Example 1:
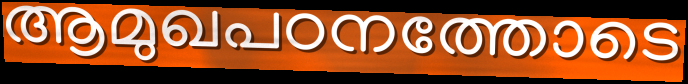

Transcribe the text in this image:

ആമുഖപഠനത്തോടെ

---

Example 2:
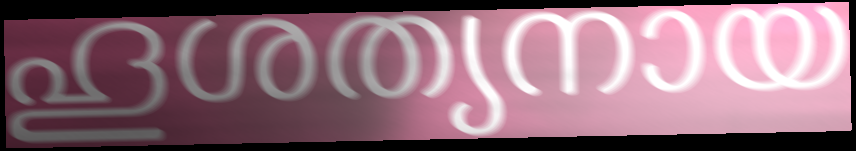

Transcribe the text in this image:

ഹൂശത്യനായ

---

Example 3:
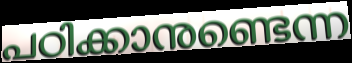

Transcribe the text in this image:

പഠിക്കാനുണ്ടെന്ന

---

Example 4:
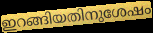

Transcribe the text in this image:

ഇറങ്ങിയതിനുശേഷം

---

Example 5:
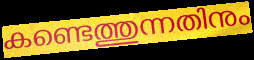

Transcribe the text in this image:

കണ്ടെത്തുന്നതിനും